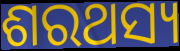
ଶରଥସ୍ୟ